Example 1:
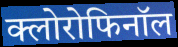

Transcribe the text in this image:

क्लोरोफिनॉल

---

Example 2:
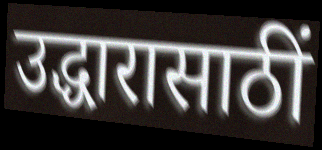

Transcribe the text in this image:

उद्धारासाठीं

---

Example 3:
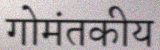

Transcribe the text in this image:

गोमंतकीय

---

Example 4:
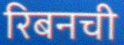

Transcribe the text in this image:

रिबनची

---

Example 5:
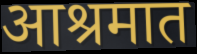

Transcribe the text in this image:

आश्रमात